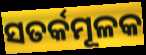
ସତର୍କମୂଳକ